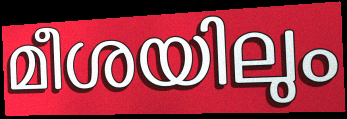
മീശയിലും